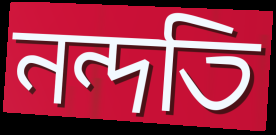
নন্দতি